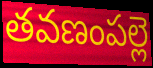
తవణంపల్లె